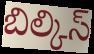
బిల్కిస్